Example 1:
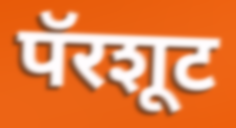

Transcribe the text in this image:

पॅरशूट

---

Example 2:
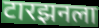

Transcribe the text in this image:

टारझनला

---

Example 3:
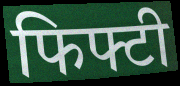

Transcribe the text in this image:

फिफ्टी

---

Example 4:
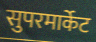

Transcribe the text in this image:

सुपरमार्केट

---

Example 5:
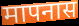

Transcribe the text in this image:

मापनास